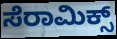
ಸೆರಾಮಿಕ್ಸ್